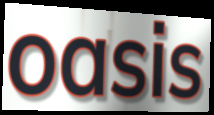
oasis